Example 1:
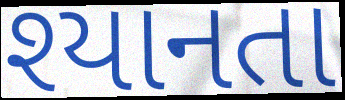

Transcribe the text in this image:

શ્યાનતા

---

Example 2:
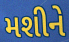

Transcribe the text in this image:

મશીને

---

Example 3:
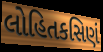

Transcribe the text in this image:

લોહિતકસિણં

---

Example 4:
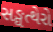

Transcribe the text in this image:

સઙ્ઘત્થેરો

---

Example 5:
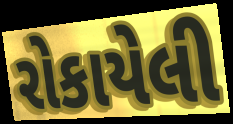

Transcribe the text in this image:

રોકાયેલી